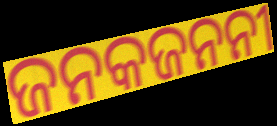
ଜନକଜନନୀ